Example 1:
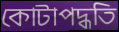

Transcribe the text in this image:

কোটাপদ্ধতি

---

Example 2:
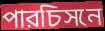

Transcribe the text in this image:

পারচিসনে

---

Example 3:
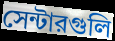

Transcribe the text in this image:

সেন্টারগুলি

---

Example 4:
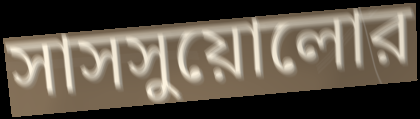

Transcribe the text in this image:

সাসসুয়োলোর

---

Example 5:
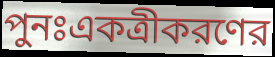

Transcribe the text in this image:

পুনঃএকত্রীকরণের